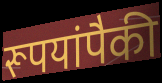
रूपयांपैकी